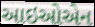
આઇઓએન